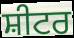
ਸ਼ੀਟਰ